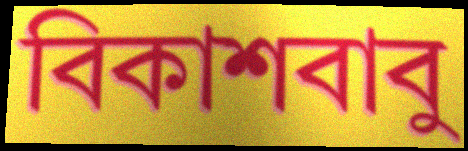
বিকাশবাবু